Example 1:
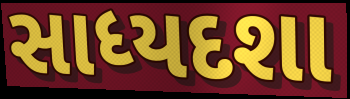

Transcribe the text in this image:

સાધ્યદશા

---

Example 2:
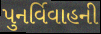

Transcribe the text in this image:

પુનર્વિવાહની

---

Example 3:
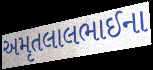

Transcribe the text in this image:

અમૃતલાલભાઈના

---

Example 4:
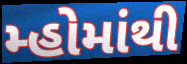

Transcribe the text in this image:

મ્હોમાંથી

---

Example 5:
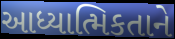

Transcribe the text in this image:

આધ્યાત્મિકતાને